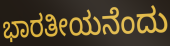
ಭಾರತೀಯನೆಂದು